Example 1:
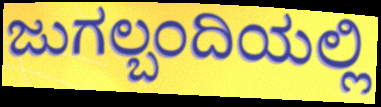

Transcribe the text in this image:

ಜುಗಲ್ಬಂದಿಯಲ್ಲಿ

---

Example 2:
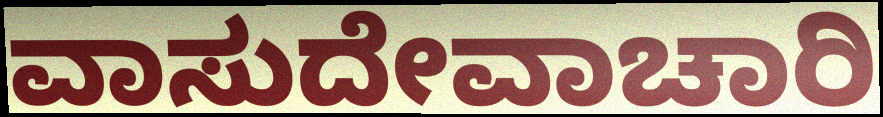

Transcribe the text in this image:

ವಾಸುದೇವಾಚಾರಿ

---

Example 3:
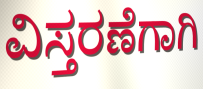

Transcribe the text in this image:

ವಿಸ್ತರಣೆಗಾಗಿ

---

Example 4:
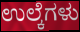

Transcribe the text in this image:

ಉಲ್ಕೆಗಳು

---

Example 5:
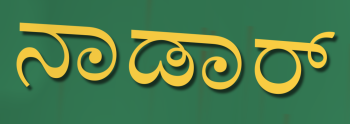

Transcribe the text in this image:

ನಾಡಾರ್